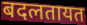
बदलतायत